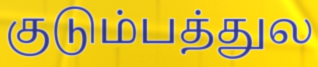
குடும்பத்துல